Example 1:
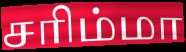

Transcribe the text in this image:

சரிம்மா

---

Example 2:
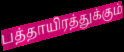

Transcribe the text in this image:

பத்தாயிரத்துக்கும்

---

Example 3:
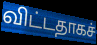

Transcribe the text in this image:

விட்டதாகச்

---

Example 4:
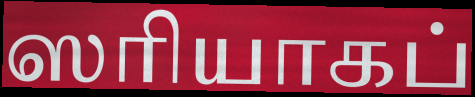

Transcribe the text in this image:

ஸரியாகப்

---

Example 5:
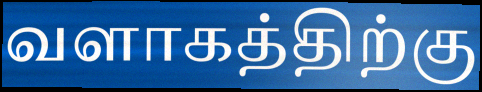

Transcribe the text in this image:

வளாகத்திற்கு